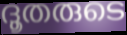
ദൂതരുടെ